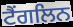
ਟੈਂਗਲਿਨ